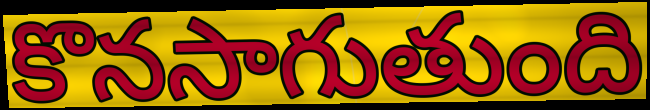
కొనసాగుతుంది